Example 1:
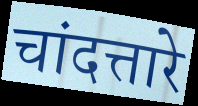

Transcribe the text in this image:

चांदत्तारे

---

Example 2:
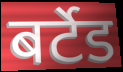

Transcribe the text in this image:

बर्टेड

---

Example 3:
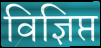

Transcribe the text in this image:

विज्ञिप्त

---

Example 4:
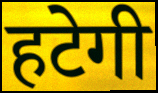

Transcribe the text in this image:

हटेगी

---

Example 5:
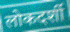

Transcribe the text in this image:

लोकदर्शी